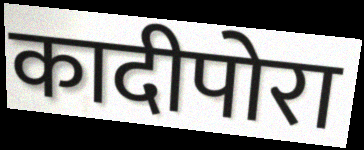
कादीपोरा